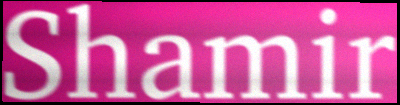
Shamir